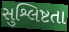
સુશ્લિષ્ટતા